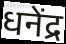
धनेंद्र